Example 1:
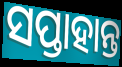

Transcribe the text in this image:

ସପ୍ତାହାନ୍ତ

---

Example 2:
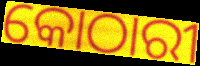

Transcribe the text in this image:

କୋଠାରୀ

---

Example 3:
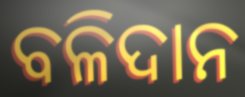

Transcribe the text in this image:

ବଳିଦାନ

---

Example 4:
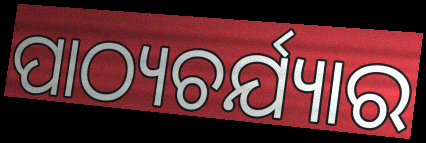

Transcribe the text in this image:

ପାଠ୍ୟଚର୍ଯ୍ୟାର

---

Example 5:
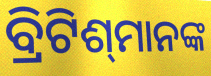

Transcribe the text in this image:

ବ୍ରିଟିଶ୍‌ମାନଙ୍କ